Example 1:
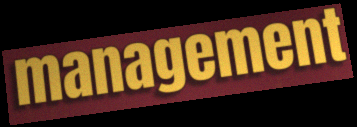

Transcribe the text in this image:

management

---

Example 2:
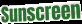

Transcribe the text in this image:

Sunscreen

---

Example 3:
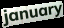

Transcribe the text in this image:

january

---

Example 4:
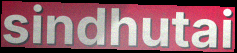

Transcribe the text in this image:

sindhutai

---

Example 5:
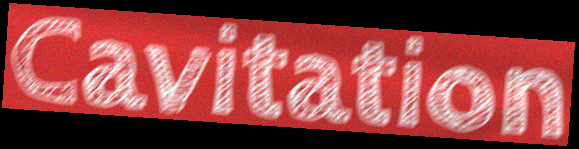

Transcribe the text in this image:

Cavitation